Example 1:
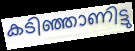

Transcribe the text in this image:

കടിഞ്ഞാണിട്ടു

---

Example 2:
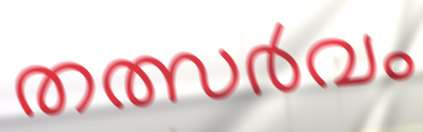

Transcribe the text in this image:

തത്സർവം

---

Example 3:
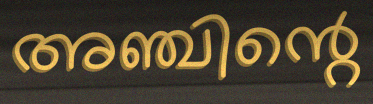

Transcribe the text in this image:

അഞ്ചിന്റെ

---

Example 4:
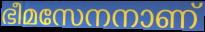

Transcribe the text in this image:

ഭീമസേനനാണ്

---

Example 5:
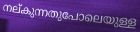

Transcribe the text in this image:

നല്കുന്നതുപോലെയുള്ള